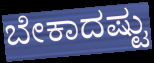
ಬೇಕಾದಷ್ಟು